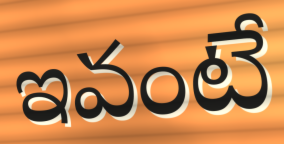
ఇవంటే